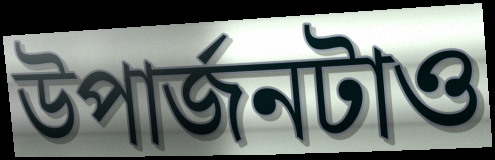
উপার্জনটাও